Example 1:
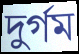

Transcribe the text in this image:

দুর্গম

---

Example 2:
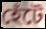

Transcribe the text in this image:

হেঁটে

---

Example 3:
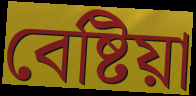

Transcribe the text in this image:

বেষ্টিয়া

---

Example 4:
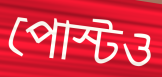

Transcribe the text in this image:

পোস্টও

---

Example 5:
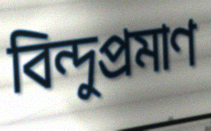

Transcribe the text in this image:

বিন্দুপ্রমাণ